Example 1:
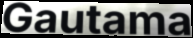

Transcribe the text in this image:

Gautama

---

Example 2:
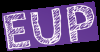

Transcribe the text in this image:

EUP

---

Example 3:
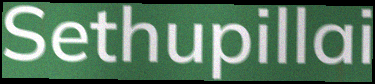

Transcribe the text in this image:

Sethupillai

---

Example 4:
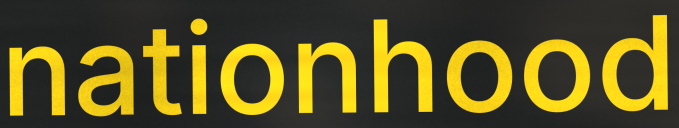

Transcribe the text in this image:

nationhood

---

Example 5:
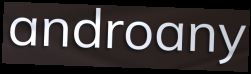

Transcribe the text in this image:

androany